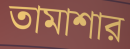
তামাশার